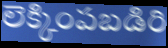
లెక్కింపబడిరి